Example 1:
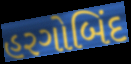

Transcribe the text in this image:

હરગોબિંદ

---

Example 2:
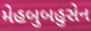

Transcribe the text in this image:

મેહબુબહુસેન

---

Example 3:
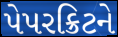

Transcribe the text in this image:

પેપરક્રિટને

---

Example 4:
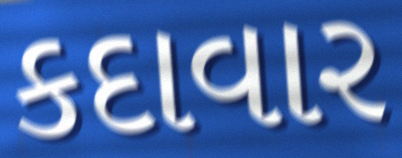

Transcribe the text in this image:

કદાવાર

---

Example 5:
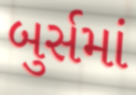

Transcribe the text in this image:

બુર્સમાં